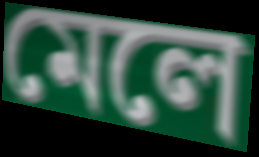
মেলে